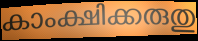
കാംക്ഷിക്കരുതു